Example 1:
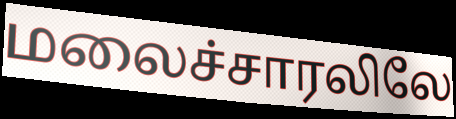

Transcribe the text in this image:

மலைச்சாரலிலே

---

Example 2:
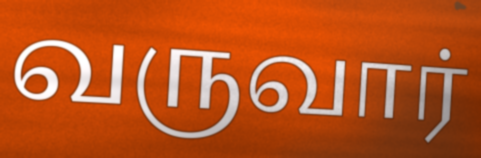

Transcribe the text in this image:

வருவார்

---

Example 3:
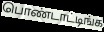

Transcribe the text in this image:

பொண்டாட்டிங்க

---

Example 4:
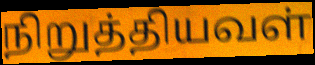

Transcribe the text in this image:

நிறுத்தியவள்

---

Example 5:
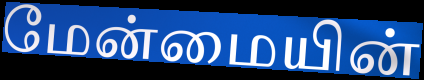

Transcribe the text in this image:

மேன்மையின்